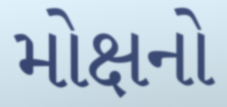
મોક્ષનો